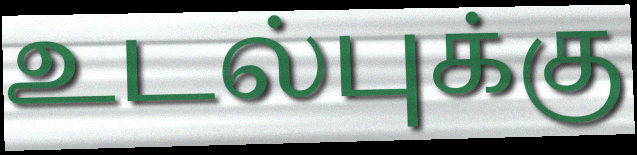
உடல்புக்கு